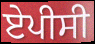
ਏਪੀਸੀ